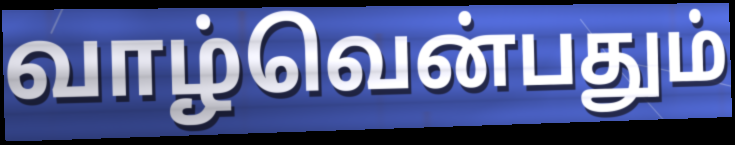
வாழ்வென்பதும்